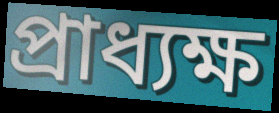
প্রাধ্যক্ষ